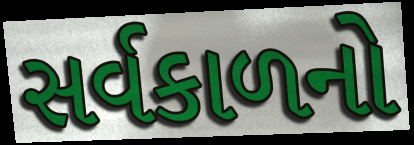
સર્વકાળનો